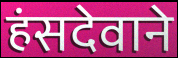
हंसदेवाने